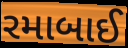
રમાબાઈ